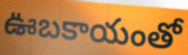
ఊబకాయంతో